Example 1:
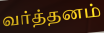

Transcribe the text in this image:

வர்த்தனம்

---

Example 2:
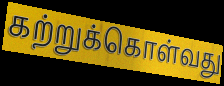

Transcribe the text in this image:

கற்றுக்கொள்வது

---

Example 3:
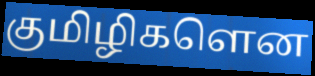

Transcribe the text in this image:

குமிழிகளென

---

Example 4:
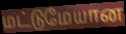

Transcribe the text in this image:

மட்டுமேயான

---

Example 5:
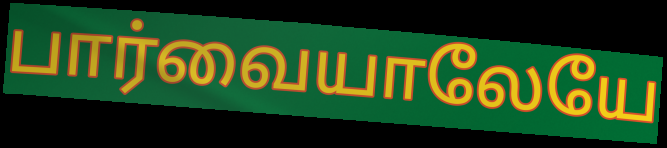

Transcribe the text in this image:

பார்வையாலேயே